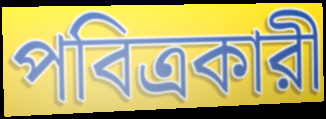
পবিত্রকারী